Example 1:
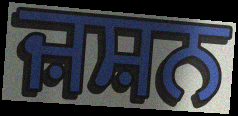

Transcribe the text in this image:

ਜ਼ਸ਼ਨ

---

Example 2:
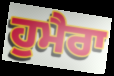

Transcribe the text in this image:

ਹੁਮੈਰਾ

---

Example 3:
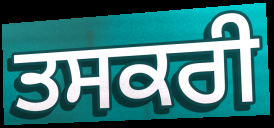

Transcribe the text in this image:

ਤਸਕਰੀ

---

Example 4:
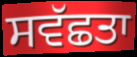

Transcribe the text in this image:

ਸਵੱਛਤਾ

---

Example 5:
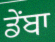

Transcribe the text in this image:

ਡੇਂਬਾ